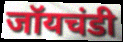
जॉयचंडी